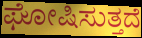
ಘೋಷಿಸುತ್ತದೆ